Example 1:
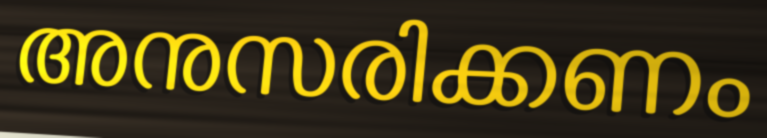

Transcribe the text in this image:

അനുസരിക്കണം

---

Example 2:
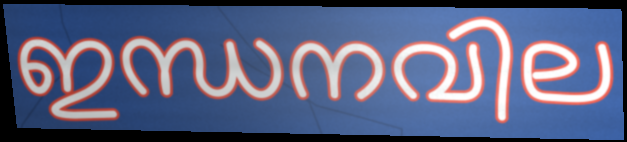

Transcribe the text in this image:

ഇന്ധനവില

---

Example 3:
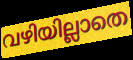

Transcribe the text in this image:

വഴിയില്ലാതെ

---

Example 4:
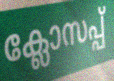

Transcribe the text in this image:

ക്ലോസപ്പ്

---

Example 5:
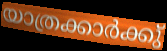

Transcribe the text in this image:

യാത്രക്കാർക്കു്